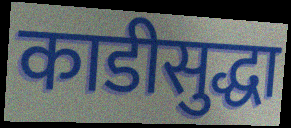
काडीसुद्धा